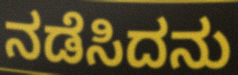
ನಡೆಸಿದನು